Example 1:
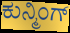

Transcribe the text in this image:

ಕುನ್ಮಿಂಗ್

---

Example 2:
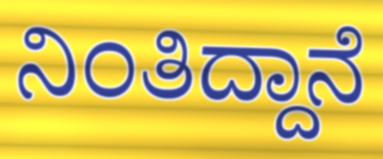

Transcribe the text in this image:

ನಿಂತಿದ್ದಾನೆ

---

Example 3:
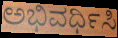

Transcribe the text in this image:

ಅಭಿವರ್ಧಿಸಿ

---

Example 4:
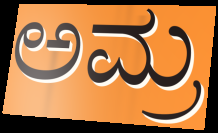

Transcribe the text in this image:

ಅಮ್ರ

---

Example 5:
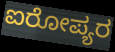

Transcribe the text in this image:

ಐರೋಪ್ಯರ